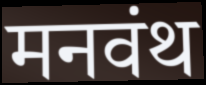
मनवंथ